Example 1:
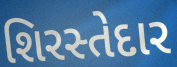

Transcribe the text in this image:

શિરસ્તેદાર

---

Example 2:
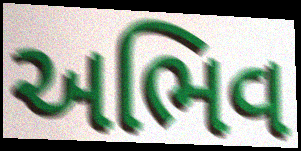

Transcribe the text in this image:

અભિવ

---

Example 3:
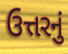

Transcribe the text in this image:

ઉત્તરનું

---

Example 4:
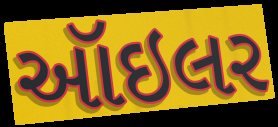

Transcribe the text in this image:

ઑઇલર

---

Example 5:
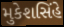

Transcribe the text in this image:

મુકેશસિંહે